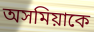
অসমিয়াকে